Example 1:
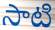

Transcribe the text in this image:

సాటి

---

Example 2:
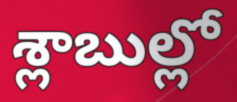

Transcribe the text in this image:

శ్లాబుల్లో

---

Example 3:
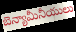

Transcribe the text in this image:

బెన్యామీనీయులు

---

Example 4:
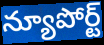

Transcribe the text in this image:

న్యూపోర్ట్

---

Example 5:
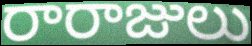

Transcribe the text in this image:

రారాజులు